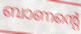
ബാണന്റെ